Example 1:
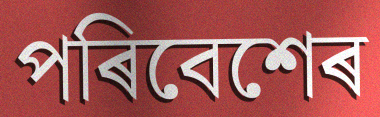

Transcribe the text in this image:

পৰিবেশেৰ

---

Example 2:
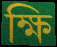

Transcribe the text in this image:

ক্ষি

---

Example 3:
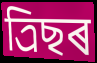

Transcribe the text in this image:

ত্ৰিছৰ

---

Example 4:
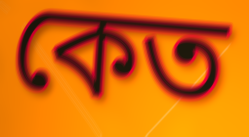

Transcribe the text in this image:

কেত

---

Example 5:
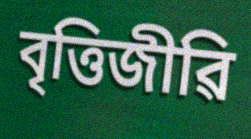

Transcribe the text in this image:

বৃত্তিজীৱি